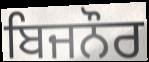
ਬਿਜਨੌਰ